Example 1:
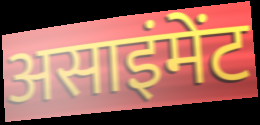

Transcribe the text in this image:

असाइंमेंट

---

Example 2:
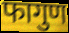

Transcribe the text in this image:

फागुण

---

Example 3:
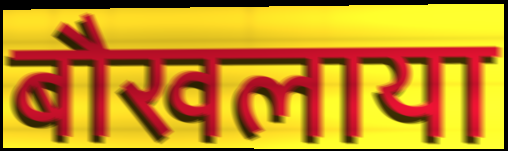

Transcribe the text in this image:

बौखलाया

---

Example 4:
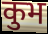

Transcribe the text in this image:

कुभ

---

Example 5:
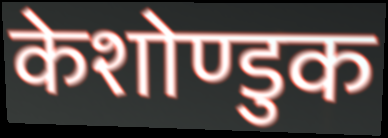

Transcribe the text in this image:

केशोण्डुक